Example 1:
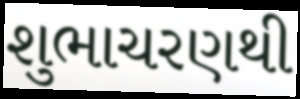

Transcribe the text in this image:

શુભાચરણથી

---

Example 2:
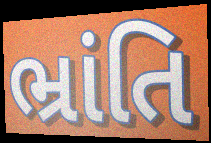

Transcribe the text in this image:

ભ્રાંતિ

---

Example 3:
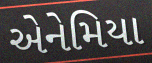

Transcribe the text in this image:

એનેમિયા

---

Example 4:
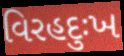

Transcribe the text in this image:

વિરહદુઃખ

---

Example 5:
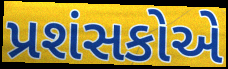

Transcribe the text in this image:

પ્રશંસકોએ